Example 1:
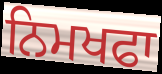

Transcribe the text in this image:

ਨਿਮਖਫਾ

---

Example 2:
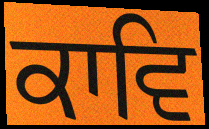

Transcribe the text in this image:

ਕਾਵਿ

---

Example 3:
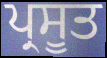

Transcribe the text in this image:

ਪ੍ਰਸੂਤ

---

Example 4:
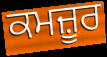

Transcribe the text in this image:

ਕਮਜ਼ੂਰ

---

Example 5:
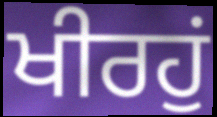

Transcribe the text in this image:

ਖੀਰਹੁਂ